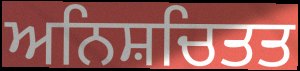
ਅਨਿਸ਼ਚਿਤਤ